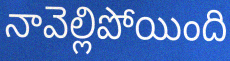
నావెల్లిపోయింది